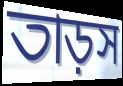
তাড়স